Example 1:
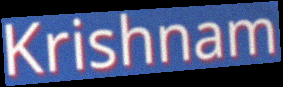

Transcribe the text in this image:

Krishnam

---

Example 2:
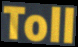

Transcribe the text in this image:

Toll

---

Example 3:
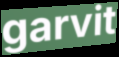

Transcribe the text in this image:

garvit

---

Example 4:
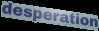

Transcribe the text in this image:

desperation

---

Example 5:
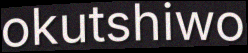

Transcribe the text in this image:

okutshiwo